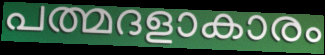
പത്മദളാകാരം